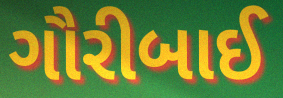
ગૌરીબાઈ